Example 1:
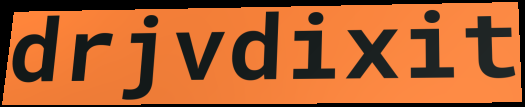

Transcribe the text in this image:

drjvdixit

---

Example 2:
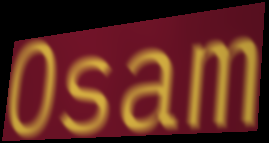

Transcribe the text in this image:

Osam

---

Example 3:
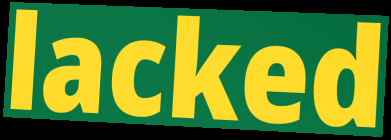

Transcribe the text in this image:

lacked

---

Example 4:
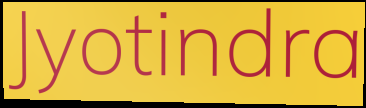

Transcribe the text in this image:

Jyotindra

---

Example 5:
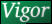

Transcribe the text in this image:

Vigor